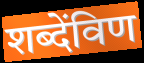
शब्देंविण